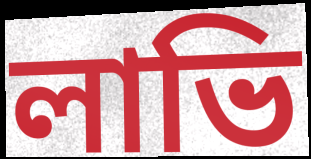
লাভি